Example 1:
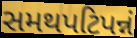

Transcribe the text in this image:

સમથપટિપન્નં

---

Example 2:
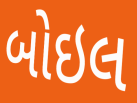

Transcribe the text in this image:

બોઇલ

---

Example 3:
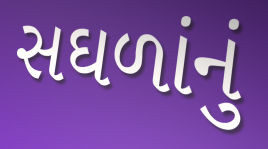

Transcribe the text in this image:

સઘળાંનું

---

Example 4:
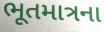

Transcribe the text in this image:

ભૂતમાત્રના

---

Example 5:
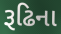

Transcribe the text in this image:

રૂઢિના